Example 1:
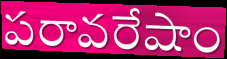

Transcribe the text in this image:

పరావరేషాం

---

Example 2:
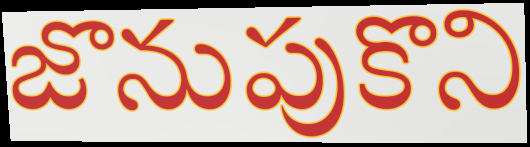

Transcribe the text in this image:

జొనుపుకొని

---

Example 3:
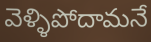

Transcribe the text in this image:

వెళ్ళిపోదామనే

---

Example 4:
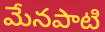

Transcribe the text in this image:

మేనపాటి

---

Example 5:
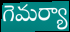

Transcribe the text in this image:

గెమర్యా